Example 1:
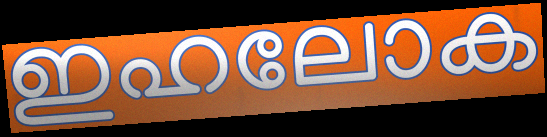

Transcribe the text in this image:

ഇഹലോക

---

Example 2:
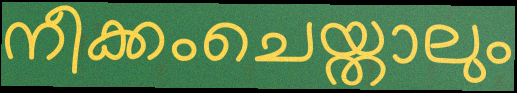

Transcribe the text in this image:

നീക്കംചെയ്താലും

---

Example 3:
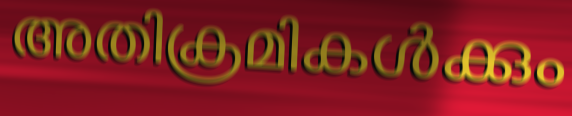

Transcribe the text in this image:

അതിക്രമികൾക്കും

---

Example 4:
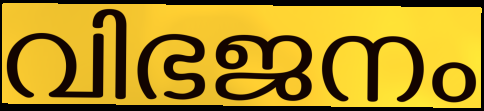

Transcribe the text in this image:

വിഭജനം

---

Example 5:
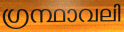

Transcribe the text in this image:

ഗ്രന്ഥാവലി